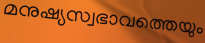
മനുഷ്യസ്വഭാവത്തെയും